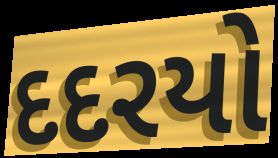
દદરયો